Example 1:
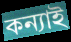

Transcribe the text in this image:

কন্যাই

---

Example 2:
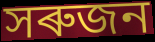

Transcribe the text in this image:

সৰুজন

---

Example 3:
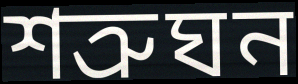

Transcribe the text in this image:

শত্ৰুঘন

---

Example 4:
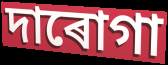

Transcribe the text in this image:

দাৰোগা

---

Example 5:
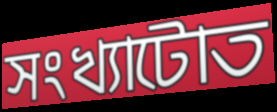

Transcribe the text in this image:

সংখ্যাটোত